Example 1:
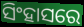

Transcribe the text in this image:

ସିଂହାସରେ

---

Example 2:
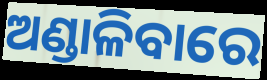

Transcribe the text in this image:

ଅଣ୍ଡାଳିବାରେ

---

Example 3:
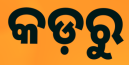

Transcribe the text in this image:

କଡ଼ରୁ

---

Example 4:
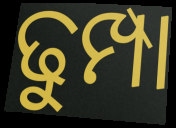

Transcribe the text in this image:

ଢୁମ୍ପା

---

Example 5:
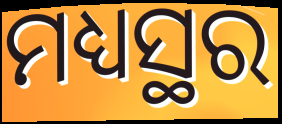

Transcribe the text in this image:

ମଧ୍ୟସ୍ଥର